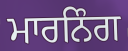
ਮਾਰਨਿੰਗ